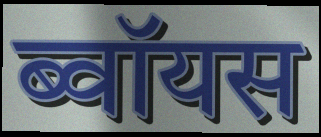
ब्वॉयस